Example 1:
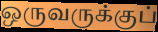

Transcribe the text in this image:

ஒருவருக்குப்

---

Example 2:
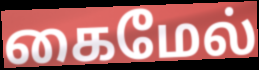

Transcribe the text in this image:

கைமேல்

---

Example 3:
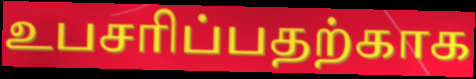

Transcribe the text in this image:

உபசரிப்பதற்காக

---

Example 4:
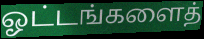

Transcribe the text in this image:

ஓட்டங்களைத்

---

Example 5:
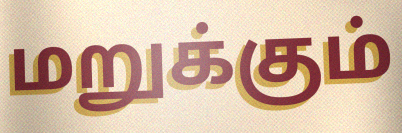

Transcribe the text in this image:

மறுக்கும்